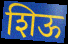
शिऊ